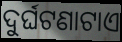
ଦୁର୍ଘଟଣାଟାଏ